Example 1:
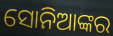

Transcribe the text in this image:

ସୋନିଆଙ୍କର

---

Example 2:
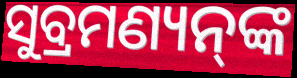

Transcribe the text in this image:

ସୁବ୍ରମଣ୍ୟନ୍‌ଙ୍କ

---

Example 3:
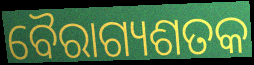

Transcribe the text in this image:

ବୈରାଗ୍ୟଶତକ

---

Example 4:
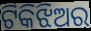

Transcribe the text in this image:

ଟିକିଝିଅର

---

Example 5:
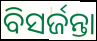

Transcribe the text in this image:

ବିସର୍ଜନ୍ତା